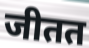
जीतत